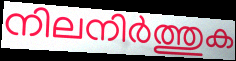
നിലനിർത്തുക